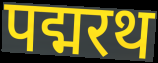
पद्मरथ